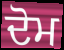
ਦੋਮ